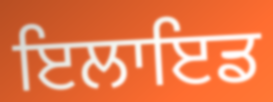
ਇਲਾਇਡ